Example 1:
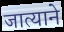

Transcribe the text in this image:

जात्याने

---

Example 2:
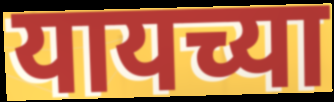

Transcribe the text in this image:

यायच्या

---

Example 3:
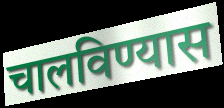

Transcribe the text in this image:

चालविण्यास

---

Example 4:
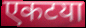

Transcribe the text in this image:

एकटया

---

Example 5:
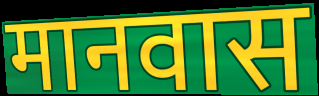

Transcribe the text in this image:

मानवास